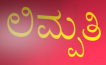
ಲಿಮ್ಪತಿ